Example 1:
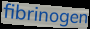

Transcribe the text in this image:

fibrinogen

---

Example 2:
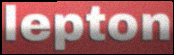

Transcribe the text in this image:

lepton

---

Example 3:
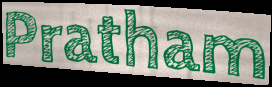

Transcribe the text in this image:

Pratham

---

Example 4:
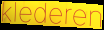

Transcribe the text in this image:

klederen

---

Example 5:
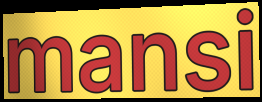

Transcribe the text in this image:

mansi